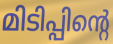
മിടിപ്പിന്റെ